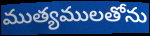
ముత్యములతోను